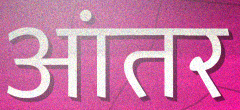
आंतर